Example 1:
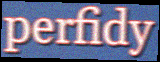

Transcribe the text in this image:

perfidy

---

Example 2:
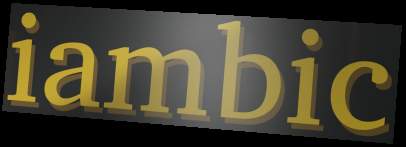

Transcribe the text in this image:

iambic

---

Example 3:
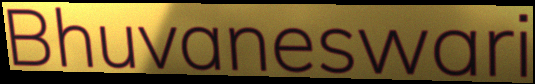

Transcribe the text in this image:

Bhuvaneswari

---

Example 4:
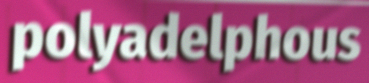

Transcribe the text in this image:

polyadelphous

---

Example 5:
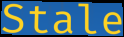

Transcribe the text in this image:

Stale